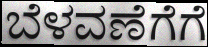
ಬೆಳವಣೆಗೆಗೆ